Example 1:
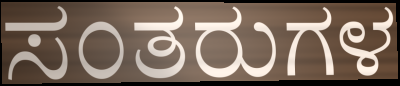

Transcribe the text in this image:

ಸಂತರುಗಳ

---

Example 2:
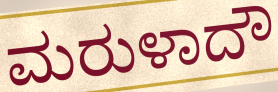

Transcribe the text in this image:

ಮರುಳಾದೌ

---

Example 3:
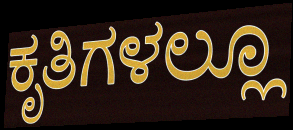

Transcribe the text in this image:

ಕೃತಿಗಳಲ್ಲೂ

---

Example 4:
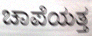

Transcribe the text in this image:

ಚಾಪೆಯತ್ತ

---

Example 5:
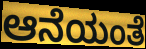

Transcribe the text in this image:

ಆನೆಯಂತೆ